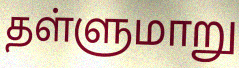
தள்ளுமாறு